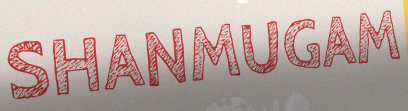
SHANMUGAM